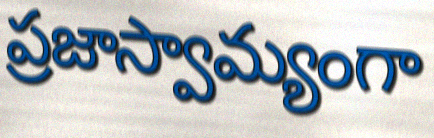
ప్రజాస్వామ్యంగా